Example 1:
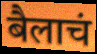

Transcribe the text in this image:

बैलाचं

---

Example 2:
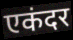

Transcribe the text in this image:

एकंदर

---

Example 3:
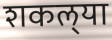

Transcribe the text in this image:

शकल्या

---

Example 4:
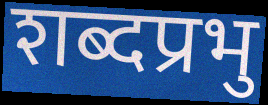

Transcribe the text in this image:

शब्दप्रभु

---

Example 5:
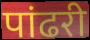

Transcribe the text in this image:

पांढरी